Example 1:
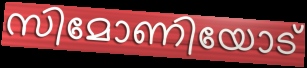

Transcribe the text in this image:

സിമോണിയോട്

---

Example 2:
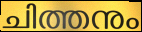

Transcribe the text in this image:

ചിത്തനും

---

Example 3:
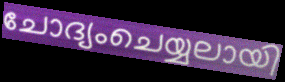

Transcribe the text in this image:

ചോദ്യംചെയ്യലായി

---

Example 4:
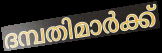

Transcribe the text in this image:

ദമ്പതിമാർക്ക്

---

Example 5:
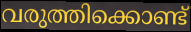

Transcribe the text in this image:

വരുത്തിക്കൊണ്ട്